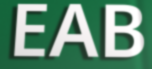
EAB